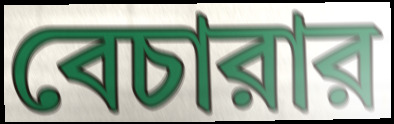
বেচারার